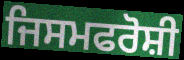
ਜਿਸਮਫਰੋਸ਼ੀ